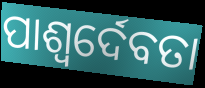
ପାଶ୍ୱର୍ଦେବତା